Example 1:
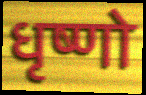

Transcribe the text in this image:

धृष्णो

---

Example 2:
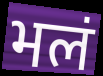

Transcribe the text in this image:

भलं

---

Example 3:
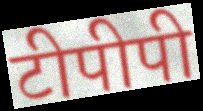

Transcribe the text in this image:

टीपीपी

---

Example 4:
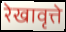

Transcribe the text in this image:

रेखावृत्ते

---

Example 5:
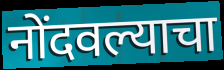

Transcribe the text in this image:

नोंदवल्याचा